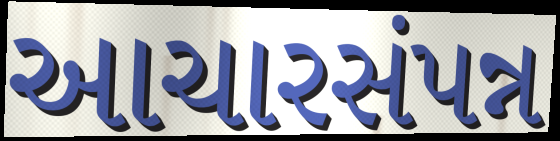
આચારસંપન્ન